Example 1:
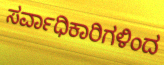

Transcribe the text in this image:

ಸರ್ವಾಧಿಕಾರಿಗಳಿಂದ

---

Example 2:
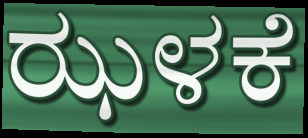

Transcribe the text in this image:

ಝಳಕೆ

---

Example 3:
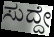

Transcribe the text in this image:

ಸುದ್ದೇ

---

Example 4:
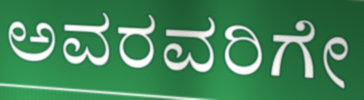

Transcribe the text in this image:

ಅವರವರಿಗೇ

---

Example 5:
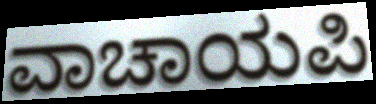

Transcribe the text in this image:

ವಾಚಾಯಪಿ